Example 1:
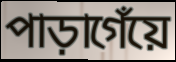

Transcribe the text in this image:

পাড়াগেঁয়ে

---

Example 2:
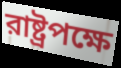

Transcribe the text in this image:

রাষ্ট্রপক্ষে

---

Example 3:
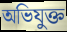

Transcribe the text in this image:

অভিযুক্ত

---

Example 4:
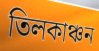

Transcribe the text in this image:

তিলকাঞ্চন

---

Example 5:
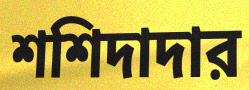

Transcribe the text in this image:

শশিদাদার